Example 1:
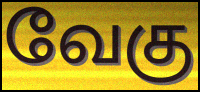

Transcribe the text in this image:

வேகு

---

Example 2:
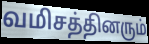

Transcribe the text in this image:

வமிசத்தினரும்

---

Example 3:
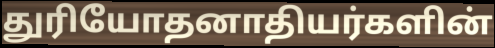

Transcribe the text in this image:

துரியோதனாதியர்களின்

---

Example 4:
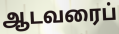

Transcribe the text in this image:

ஆடவரைப்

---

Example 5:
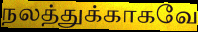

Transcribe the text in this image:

நலத்துக்காகவே